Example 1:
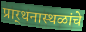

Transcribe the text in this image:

प्रार्थनास्थळांचे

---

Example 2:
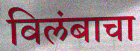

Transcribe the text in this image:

विलंबाचा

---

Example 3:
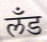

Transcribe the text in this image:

लँड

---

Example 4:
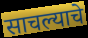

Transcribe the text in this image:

साचल्याचे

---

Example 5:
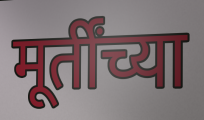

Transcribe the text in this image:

मूर्तींच्या